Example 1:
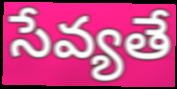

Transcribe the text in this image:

సేవ్యతే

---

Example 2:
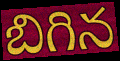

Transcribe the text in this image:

బిగిన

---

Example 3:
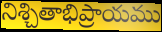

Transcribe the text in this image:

నిశ్చితాభిప్రాయము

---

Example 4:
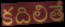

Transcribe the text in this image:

కదిలితే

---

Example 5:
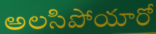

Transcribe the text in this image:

అలసిపోయారో